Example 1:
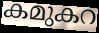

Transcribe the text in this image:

കമുകറ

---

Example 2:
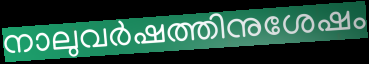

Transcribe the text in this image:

നാലുവർഷത്തിനുശേഷം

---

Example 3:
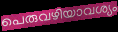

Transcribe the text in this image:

പെരുവഴിയാവശ്യം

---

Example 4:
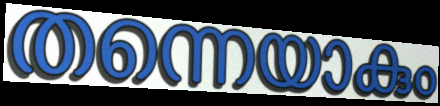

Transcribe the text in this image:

തന്നെയാകും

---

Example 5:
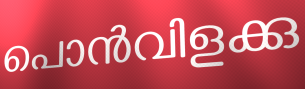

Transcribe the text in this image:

പൊൻവിളക്കു